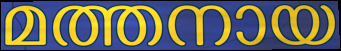
മത്തനായ